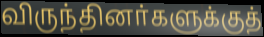
விருந்தினர்களுக்குத்